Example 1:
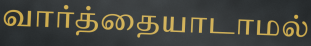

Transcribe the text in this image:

வார்த்தையாடாமல்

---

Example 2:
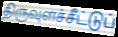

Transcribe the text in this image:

திருவுளச்சீட்டுப்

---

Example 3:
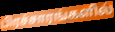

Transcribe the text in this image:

பிரச்சாரங்களில்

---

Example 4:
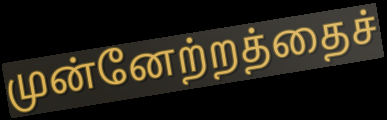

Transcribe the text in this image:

முன்னேற்றத்தைச்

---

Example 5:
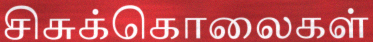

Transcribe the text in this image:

சிசுக்கொலைகள்